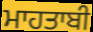
ਮਾਹਤਾਬੀ